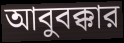
আবুবক্কার